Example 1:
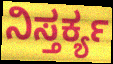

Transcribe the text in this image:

ನಿಸ್ತರ್ಕ್ಯ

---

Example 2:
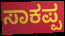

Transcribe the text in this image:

ಸಾಕಪ್ಪ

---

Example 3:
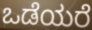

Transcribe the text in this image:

ಒಡೆಯರೆ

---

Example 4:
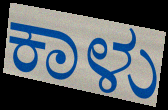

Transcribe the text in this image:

ಕಾಳು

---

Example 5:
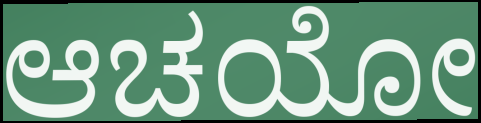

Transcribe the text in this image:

ಆಚಯೋ